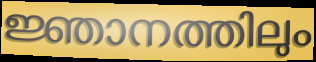
ജ്ഞാനത്തിലും